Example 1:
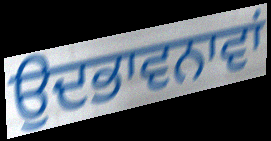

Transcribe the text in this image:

ਉਦਭਾਵਨਾਵਾਂ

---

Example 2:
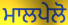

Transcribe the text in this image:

ਮਾਲਪੇਲੋ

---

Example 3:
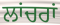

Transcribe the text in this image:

ਲਾਂਚਰਾਂ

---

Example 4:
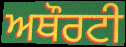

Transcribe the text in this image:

ਅਥੌਰਟੀ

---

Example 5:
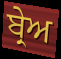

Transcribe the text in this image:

ਬ੍ਰੇਅ